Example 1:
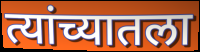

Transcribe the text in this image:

त्यांच्यातला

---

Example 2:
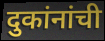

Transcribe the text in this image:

दुकांनांची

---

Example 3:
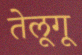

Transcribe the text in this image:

तेलूगू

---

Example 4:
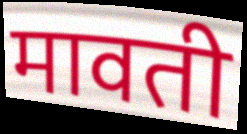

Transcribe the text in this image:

मावती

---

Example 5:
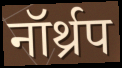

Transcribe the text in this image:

नॉर्थ्रप